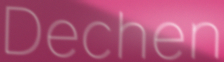
Dechen